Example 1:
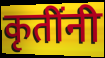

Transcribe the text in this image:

कृतींनी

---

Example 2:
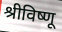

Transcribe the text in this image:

श्रीविष्णू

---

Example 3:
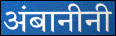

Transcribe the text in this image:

अंबानीनी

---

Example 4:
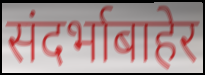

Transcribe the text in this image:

संदर्भाबाहेर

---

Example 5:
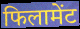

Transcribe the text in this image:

फिलामेंट